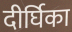
दीर्घिका